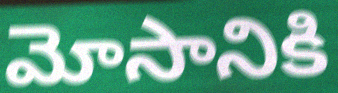
మోసానికి